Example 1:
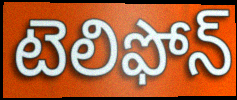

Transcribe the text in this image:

టెలిఫోన్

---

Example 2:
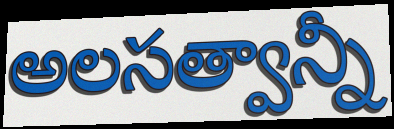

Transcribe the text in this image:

అలసత్వాన్నీ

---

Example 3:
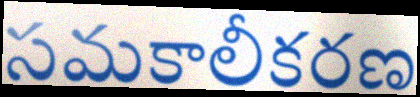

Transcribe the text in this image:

సమకాలీకరణ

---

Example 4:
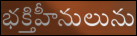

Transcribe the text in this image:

భక్తిహీనులును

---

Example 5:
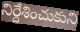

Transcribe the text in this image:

నిర్దేశించుకుని